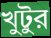
খুটুর